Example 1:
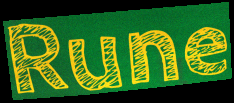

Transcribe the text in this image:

Rune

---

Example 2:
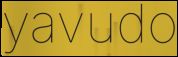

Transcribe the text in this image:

yavudo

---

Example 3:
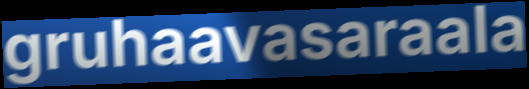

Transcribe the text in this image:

gruhaavasaraala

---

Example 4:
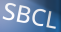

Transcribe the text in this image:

SBCL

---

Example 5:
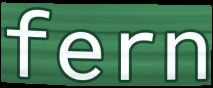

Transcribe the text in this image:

fern